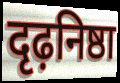
दृढ़निष्ठा